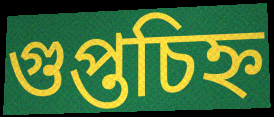
গুপ্তচিহ্ন